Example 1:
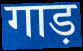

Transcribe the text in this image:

गाड़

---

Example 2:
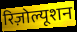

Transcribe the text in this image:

रिज़ोल्यूशन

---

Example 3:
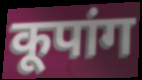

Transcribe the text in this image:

कूपांग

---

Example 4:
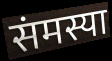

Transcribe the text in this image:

संमस्या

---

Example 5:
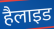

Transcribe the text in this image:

हैलाइड